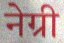
नेग्री